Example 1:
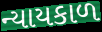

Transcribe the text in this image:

ન્યાયકાળ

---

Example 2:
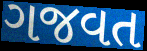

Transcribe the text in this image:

ગજવત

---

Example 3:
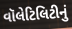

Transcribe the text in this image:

વૉલેટિલિટીનું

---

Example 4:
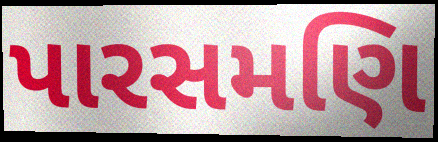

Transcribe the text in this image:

પારસમણિ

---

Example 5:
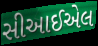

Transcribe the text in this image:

સીઆઈએલ